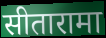
सीतारामा